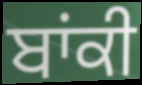
ਬਾਂਕੀ